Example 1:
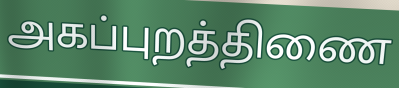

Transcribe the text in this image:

அகப்புறத்திணை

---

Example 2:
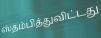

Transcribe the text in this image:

ஸ்தம்பித்துவிட்டது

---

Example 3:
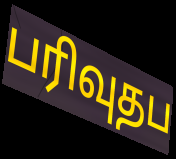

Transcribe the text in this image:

பரிவுதப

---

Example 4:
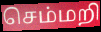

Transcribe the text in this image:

செம்மறி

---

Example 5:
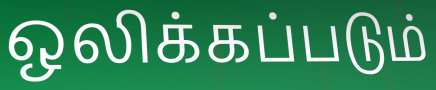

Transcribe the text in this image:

ஒலிக்கப்படும்